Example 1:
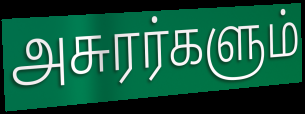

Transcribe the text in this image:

அசுரர்களும்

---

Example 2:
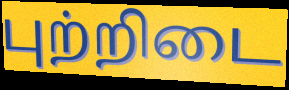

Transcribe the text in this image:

புற்றிடை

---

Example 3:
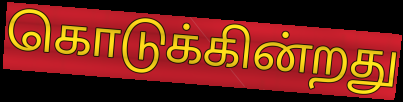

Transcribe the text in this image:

கொடுக்கின்றது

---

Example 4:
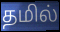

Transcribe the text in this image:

தமில்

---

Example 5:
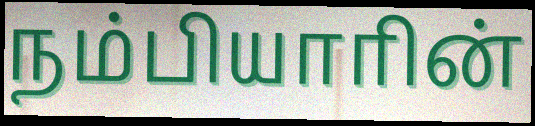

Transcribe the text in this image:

நம்பியாரின்